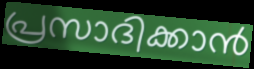
പ്രസാദിക്കാൻ